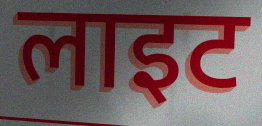
लाइट